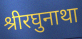
श्रीरघुनाथा